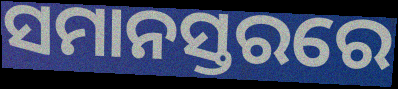
ସମାନସ୍ତରରେ